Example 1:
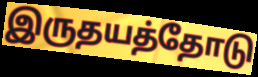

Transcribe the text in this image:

இருதயத்தோடு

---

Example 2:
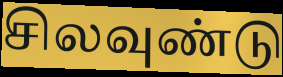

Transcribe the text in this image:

சிலவுண்டு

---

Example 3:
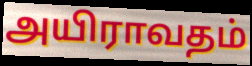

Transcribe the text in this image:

அயிராவதம்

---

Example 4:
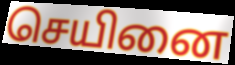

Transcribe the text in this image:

செயினை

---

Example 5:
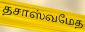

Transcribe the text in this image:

தசாஸ்வமேத